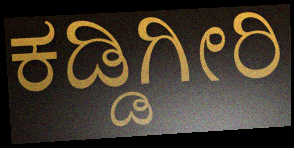
ಕಡ್ಡಿಗೀರಿ